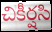
చికీర్షసి